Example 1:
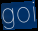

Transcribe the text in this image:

goi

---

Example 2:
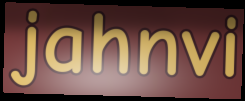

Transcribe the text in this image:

jahnvi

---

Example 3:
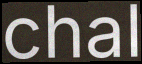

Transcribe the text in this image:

chal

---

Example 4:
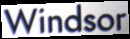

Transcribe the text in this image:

Windsor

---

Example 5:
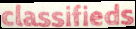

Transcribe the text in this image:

classifieds